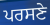
ਪਰਸਣੇ